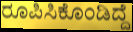
ರೂಪಿಸಿಕೊಂಡಿದ್ದೆ